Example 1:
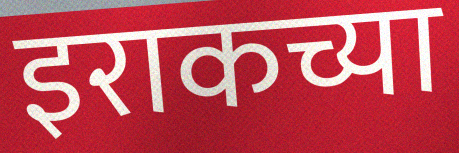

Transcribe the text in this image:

इराकच्या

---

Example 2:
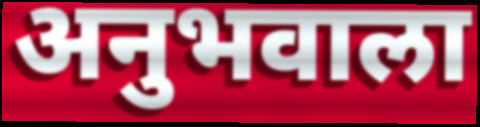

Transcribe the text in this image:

अनुभवाला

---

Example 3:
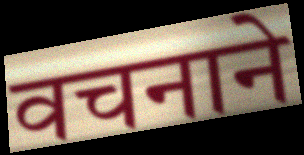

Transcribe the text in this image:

वचनाने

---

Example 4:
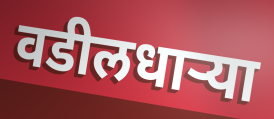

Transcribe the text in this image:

वडीलधाऱ्या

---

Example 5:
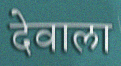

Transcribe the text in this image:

देवाला